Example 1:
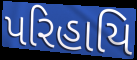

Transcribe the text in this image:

પરિહાયિ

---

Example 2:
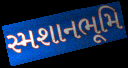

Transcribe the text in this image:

સ્મશાનભૂમિ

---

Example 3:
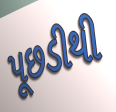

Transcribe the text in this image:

પૂછડીથી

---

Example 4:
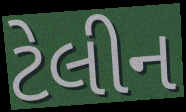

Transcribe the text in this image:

ટેલીન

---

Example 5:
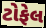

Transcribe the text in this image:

ટોફેલ